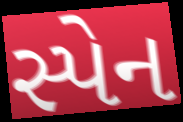
સ્પેન